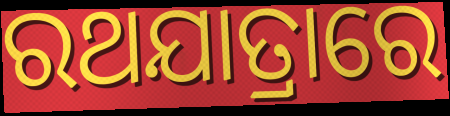
ରଥଯାତ୍ରାରେ